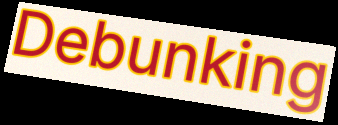
Debunking